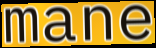
mane